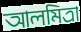
আলমিত্রা